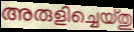
അരുളിച്ചെയ്തു